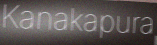
Kanakapura